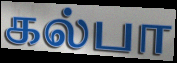
கல்பா